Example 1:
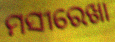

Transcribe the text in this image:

ମସୀରେଖା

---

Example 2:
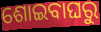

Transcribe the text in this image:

ଶୋଇବାଘରୁ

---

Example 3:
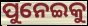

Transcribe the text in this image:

ପୁନେଇକୁ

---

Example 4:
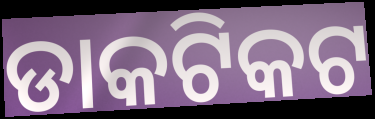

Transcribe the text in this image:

ଡାକଟିକଟ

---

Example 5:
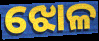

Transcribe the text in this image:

ଝୋଳ